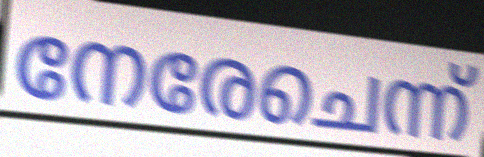
നേരേചെന്ന്